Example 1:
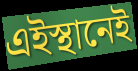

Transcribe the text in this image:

এইস্থানেই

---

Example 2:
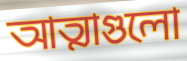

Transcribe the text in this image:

আত্মাগুলো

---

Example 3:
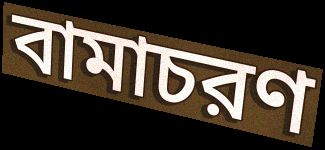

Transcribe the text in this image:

বামাচরণ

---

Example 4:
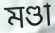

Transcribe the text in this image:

মণ্ডা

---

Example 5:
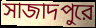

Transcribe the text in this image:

সাজাদপুরে